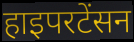
हाइपरटेंसन